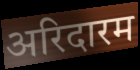
अरिदारम